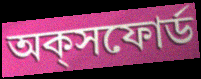
অক্‌সফোর্ড